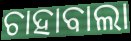
ଚାହାବାଲା